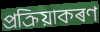
প্ৰক্ৰিয়াকৰণ